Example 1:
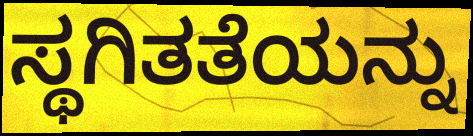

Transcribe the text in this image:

ಸ್ಥಗಿತತೆಯನ್ನು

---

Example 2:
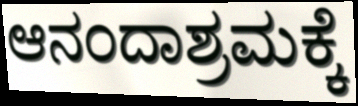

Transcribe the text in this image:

ಆನಂದಾಶ್ರಮಕ್ಕೆ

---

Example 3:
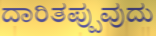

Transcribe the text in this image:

ದಾರಿತಪ್ಪುವುದು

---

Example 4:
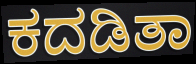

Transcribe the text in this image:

ಕದಡಿತಾ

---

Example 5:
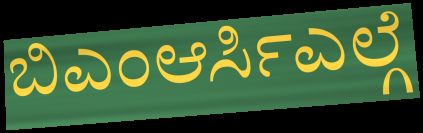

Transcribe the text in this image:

ಬಿಎಂಆರ್ಸಿಎಲ್ಗೆ